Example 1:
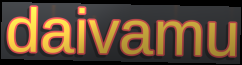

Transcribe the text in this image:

daivamu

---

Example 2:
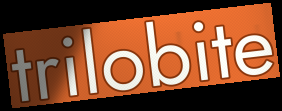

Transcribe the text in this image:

trilobite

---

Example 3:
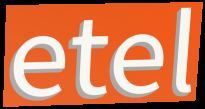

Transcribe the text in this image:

etel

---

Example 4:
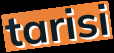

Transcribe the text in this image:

tarisi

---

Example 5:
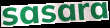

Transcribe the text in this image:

sasara